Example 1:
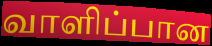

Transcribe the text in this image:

வாளிப்பான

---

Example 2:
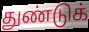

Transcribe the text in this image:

துண்டுக்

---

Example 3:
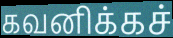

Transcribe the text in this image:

கவனிக்கச்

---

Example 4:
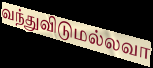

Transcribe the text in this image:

வந்துவிடுமல்லவா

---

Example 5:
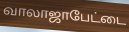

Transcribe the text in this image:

வாலாஜாபேட்டை